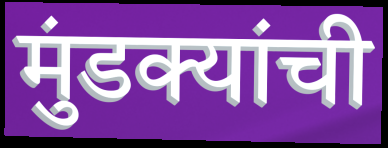
मुंडक्यांची